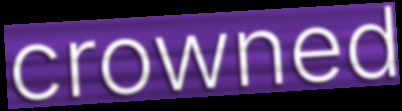
crowned